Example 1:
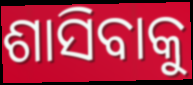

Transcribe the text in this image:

ଶାସିବାକୁ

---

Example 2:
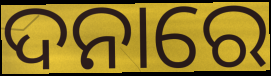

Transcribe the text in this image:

ଦନାରେ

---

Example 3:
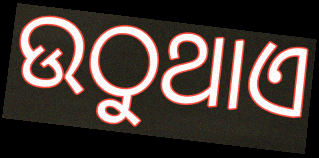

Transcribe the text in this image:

ଉଠୁଥାଏ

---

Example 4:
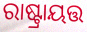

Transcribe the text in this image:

ରାଷ୍ଟ୍ରାୟତ୍ତ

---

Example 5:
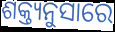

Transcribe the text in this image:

ଶକ୍ତ୍ୟନୁସାରେ